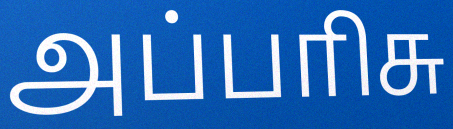
அப்பரிசு